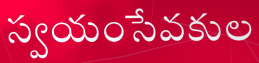
స్వయంసేవకుల